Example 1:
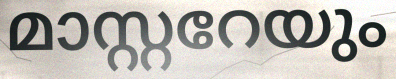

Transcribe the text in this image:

മാസ്റ്ററേയും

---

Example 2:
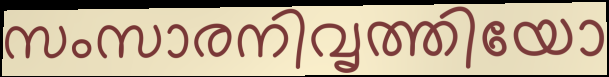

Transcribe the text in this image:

സംസാരനിവൃത്തിയോ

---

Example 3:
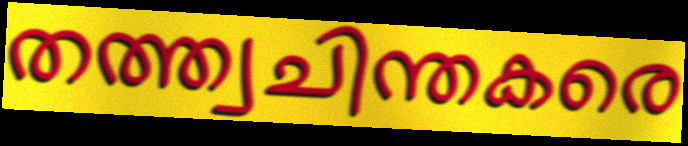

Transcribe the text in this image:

തത്ത്വചിന്തകരെ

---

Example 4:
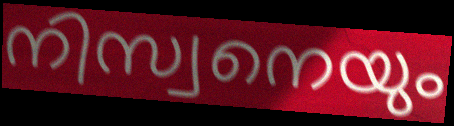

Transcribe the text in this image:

നിസ്വനെയും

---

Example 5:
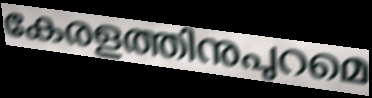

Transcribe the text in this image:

കേരളത്തിനുപുറമെ